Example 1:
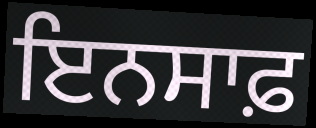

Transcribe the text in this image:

ਇਨਸਾਫ਼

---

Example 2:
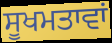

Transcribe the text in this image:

ਸੂਖਮਤਾਵਾਂ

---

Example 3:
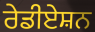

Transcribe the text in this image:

ਰੇਡੀਏਸ਼ਨ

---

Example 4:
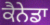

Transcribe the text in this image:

ਕੈਨੇਡਾ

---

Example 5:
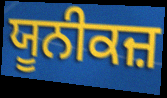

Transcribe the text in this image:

ਯੂਨੀਕਜ਼